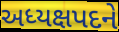
અધ્યક્ષપદને